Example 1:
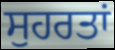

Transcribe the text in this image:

ਸੁਹਰਤਾਂ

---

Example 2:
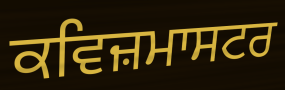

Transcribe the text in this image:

ਕਵਿਜ਼ਮਾਸਟਰ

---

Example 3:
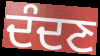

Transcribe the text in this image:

ਦੰਦਣ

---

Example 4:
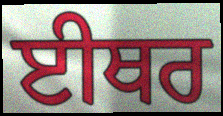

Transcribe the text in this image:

ਈਥਰ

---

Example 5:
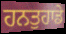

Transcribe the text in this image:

ਹਨਤੁਹਾਡੇ